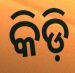
କିଡ଼ି